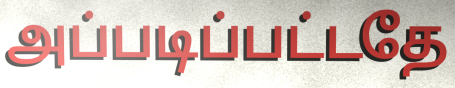
அப்படிப்பட்டதே